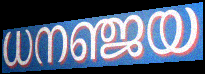
ധനഞ്ജയ